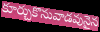
కూర్చుకొనువాడవునైన